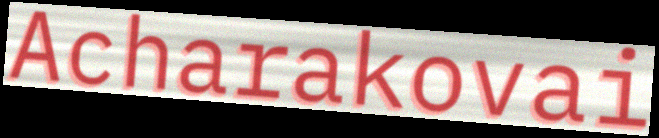
Acharakovai